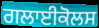
ਗਲਾਈਕੋਲਸ